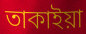
তাকাইয়া